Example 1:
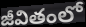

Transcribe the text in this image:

జీవితంలో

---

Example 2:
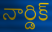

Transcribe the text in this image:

నార్డిక్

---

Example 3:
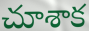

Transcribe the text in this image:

చూశాక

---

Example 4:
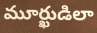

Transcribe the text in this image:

మూర్ఖుడిలా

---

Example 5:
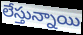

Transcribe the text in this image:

లేస్తున్నాయి